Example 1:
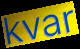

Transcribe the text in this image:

kvar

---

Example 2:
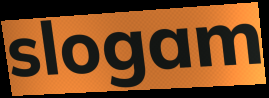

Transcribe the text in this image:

slogam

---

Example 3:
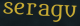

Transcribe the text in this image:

seragu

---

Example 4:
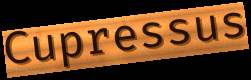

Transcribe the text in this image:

Cupressus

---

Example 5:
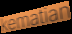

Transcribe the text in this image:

kematian